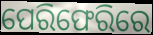
ପେରିଫେରିରେ